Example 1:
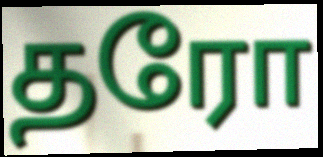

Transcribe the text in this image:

தரோ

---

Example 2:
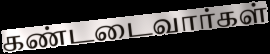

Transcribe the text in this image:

கண்டடைவார்கள்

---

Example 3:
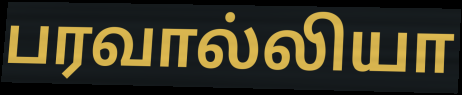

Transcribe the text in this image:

பரவால்லியா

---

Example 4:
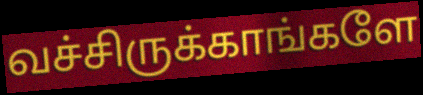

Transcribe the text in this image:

வச்சிருக்காங்களே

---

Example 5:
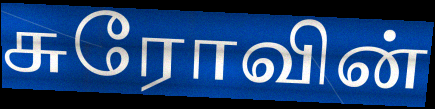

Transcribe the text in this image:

சுரோவின்